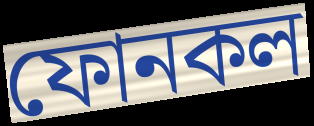
ফোনকল